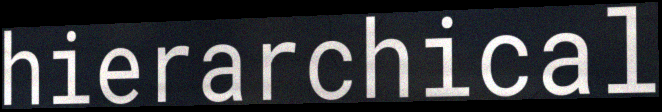
hierarchical